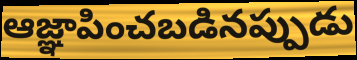
ఆజ్ఞాపించబడినప్పుడు